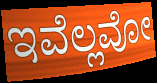
ಇವೆಲ್ಲವೋ